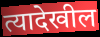
त्यादेखील